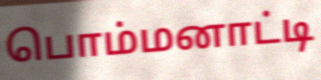
பொம்மனாட்டி